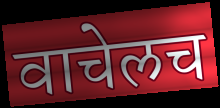
वाचेलच